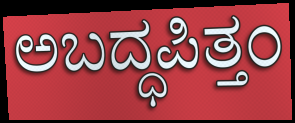
ಅಬದ್ಧಪಿತ್ತಂ